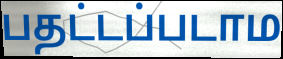
பதட்டப்படாம